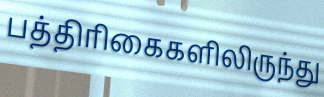
பத்திரிகைகளிலிருந்து